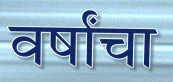
वर्षांचा